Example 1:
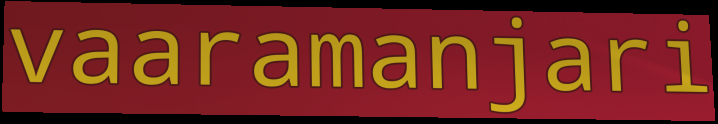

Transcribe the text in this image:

vaaramanjari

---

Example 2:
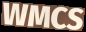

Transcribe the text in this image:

WMCS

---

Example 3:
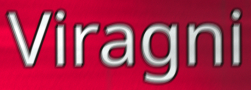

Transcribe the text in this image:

Viragni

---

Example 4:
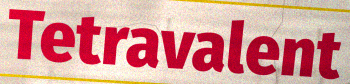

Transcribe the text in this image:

Tetravalent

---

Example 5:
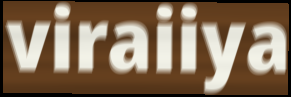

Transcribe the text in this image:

viraiiya